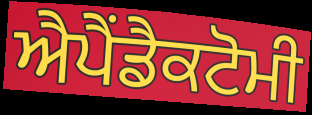
ਐਪੈਂਡੈਕਟੋਮੀ